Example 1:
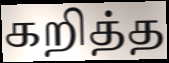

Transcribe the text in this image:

கறித்த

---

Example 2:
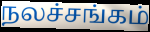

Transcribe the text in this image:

நலச்சங்கம்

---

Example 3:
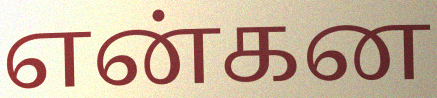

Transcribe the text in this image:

என்கன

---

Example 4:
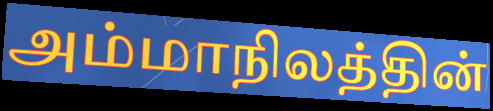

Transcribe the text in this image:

அம்மாநிலத்தின்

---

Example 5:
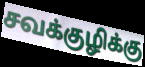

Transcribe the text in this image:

சவக்குழிக்கு